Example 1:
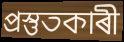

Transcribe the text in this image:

প্ৰস্তুতকাৰী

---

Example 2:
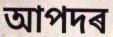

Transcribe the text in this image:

আপদৰ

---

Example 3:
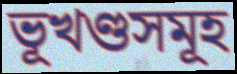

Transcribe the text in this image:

ভূখণ্ডসমূহ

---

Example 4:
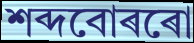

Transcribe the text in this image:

শব্দবোৰৰো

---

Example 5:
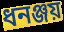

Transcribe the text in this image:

ধনঞ্জয়